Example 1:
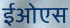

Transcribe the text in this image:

ईओएस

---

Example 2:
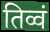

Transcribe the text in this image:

तिव्वं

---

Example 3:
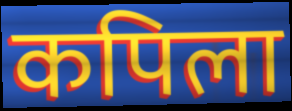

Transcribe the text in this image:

कपिला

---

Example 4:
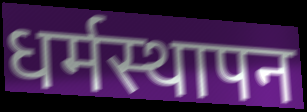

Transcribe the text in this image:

धर्मस्थापन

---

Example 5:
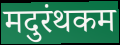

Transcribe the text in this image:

मदुरंथकम